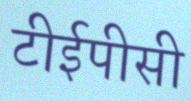
टीईपीसी